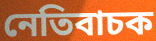
নেতিবাচক